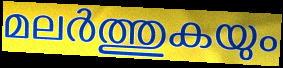
മലർത്തുകയും